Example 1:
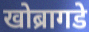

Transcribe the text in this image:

खोब्रागडे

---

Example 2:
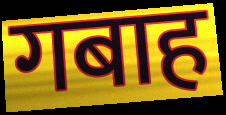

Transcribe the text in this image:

गबाह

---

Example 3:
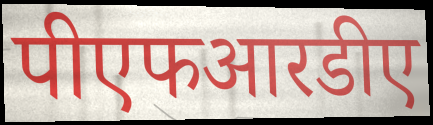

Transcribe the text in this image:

पीएफआरडीए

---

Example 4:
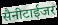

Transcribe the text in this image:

सैनीटाईजर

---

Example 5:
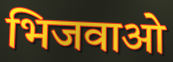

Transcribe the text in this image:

भिजवाओ